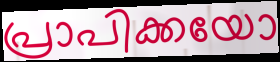
പ്രാപിക്കയോ